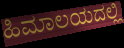
ಹಿಮಾಲಯದಲ್ಲಿ